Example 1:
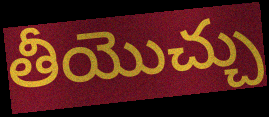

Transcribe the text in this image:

తీయొచ్చు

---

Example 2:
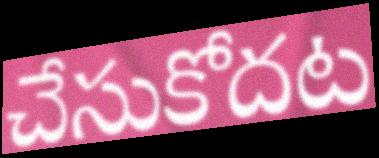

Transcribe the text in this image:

చేసుకోదట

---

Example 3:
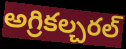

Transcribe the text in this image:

అగ్రికల్చరల్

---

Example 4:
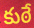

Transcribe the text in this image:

కుఠే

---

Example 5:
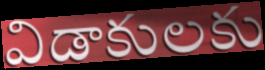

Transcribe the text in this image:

విడాకులకు